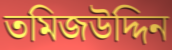
তমিজউদ্দিন